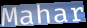
Mahar